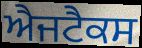
ਐਜਟੈਕਸ